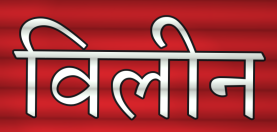
विलीन